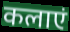
कलाएं